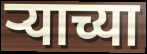
ऱ्याच्या